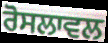
ਰੋਸਲਾਵਲ